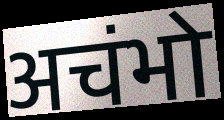
अचंभो